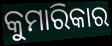
କୁମାରିକାର